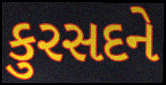
કુરસદને